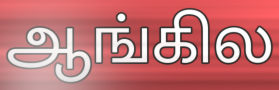
ஆங்கில